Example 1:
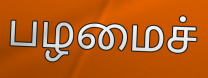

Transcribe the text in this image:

பழமைச்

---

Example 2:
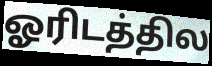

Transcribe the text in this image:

ஓரிடத்தில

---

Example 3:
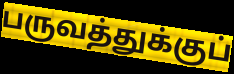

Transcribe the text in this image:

பருவத்துக்குப்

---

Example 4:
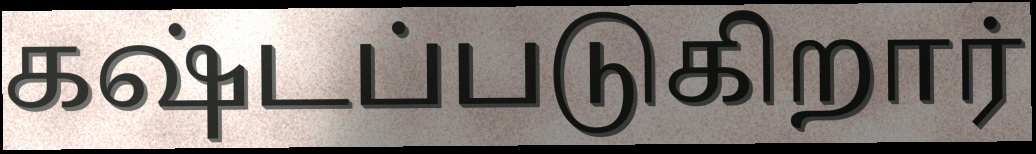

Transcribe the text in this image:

கஷ்டப்படுகிறார்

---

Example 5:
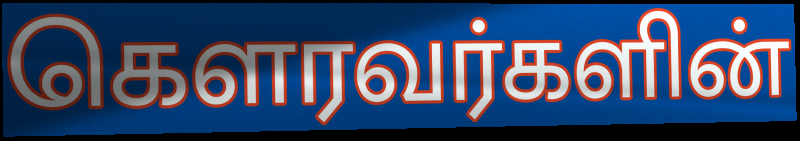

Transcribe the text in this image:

கௌரவர்களின்